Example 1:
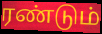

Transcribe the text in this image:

ரண்டும்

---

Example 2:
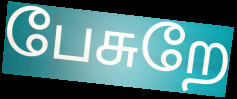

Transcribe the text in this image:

பேசுறே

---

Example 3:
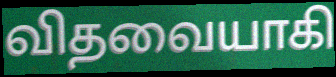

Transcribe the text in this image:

விதவையாகி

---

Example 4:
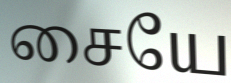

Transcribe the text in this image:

சையே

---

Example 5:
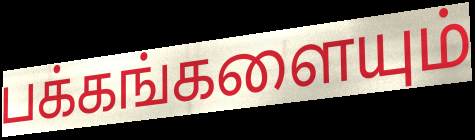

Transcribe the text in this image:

பக்கங்களையும்